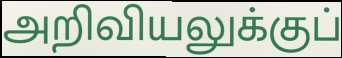
அறிவியலுக்குப்